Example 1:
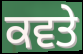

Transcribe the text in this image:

ਕਵਤੇ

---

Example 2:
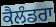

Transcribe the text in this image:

ਕੈਲੰਡਰਾ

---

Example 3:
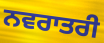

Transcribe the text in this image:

ਨਵਰਾਤਰੀ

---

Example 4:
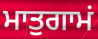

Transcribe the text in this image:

ਮਾਤੁਗਾਮਂ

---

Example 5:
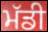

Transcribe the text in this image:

ਮੱਡੀ